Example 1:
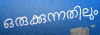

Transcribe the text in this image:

ഒരുക്കുന്നതിലും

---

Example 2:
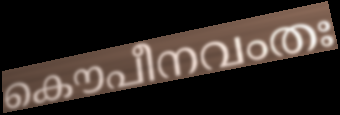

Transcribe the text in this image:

കൌപീനവംതഃ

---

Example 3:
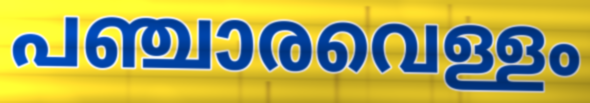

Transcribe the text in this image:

പഞ്ചാരവെള്ളം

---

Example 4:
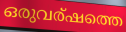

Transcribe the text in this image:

ഒരുവര്ഷത്തെ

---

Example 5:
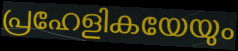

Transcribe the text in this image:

പ്രഹേളികയേയും